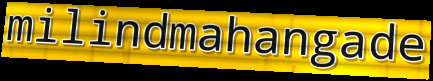
milindmahangade